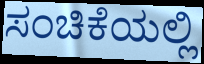
ಸಂಚಿಕೆಯಲ್ಲಿ